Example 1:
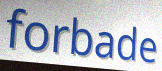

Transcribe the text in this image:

forbade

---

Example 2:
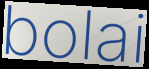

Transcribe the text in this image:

bolai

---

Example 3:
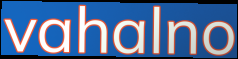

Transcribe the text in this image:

vahalno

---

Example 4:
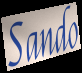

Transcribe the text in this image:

Sando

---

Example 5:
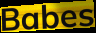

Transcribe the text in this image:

Babes